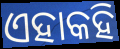
ଏହାକହି